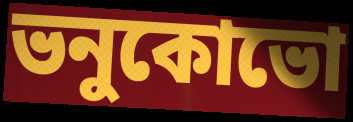
ভনুকোভো